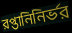
রপ্তানিনির্ভর